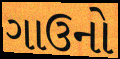
ગાઉનો